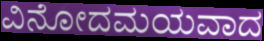
ವಿನೋದಮಯವಾದ